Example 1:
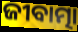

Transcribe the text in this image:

ଜୀବାତ୍ମା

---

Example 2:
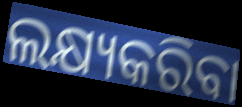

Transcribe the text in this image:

ଲକ୍ଷ୍ୟକରିବା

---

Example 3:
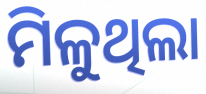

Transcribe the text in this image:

ମିଳୁଥିଲା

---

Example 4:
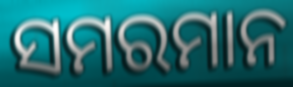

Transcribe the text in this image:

ସମରମାନ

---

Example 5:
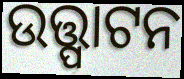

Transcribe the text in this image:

ଉତ୍ତ୍ପାଟନ